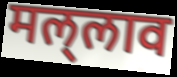
मल्लाव